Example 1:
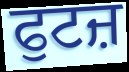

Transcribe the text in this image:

ਫੁਟਜ਼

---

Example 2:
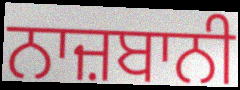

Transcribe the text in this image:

ਨਾਜ਼ਬਾਨੀ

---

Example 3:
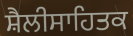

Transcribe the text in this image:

ਸ਼ੈਲੀਸਾਹਿਤਕ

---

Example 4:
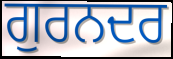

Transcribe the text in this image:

ਗੁਰਨਦਰ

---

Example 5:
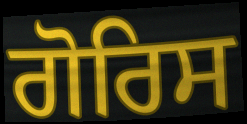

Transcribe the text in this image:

ਗੋਰਿਸ